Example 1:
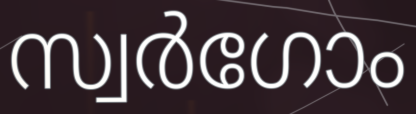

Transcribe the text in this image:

സ്വർഗോം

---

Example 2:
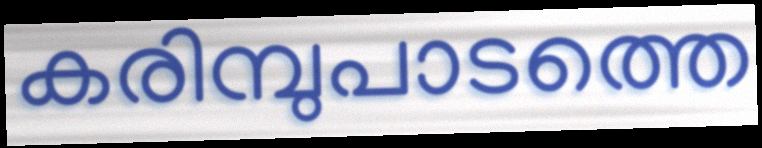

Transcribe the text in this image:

കരിമ്പുപാടത്തെ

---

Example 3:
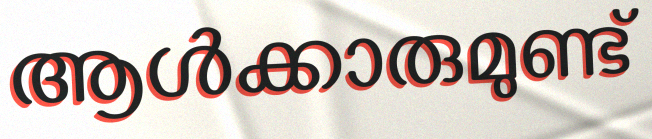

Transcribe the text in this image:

ആൾക്കാരുമുണ്ട്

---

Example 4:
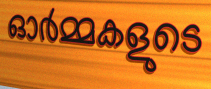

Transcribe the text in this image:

ഓർമ്മകളുടെ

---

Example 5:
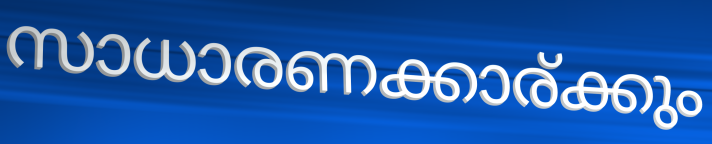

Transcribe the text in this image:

സാധാരണക്കാര്ക്കും